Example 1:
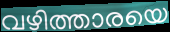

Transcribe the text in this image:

വഴിത്താരയെ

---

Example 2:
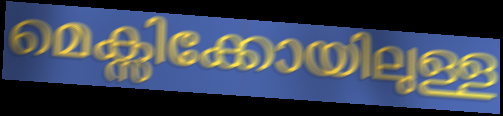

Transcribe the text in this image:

മെക്സിക്കോയിലുള്ള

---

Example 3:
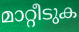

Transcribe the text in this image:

മാറ്റീടുക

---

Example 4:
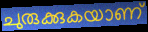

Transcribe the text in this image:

ചുരുക്കുകയാണ്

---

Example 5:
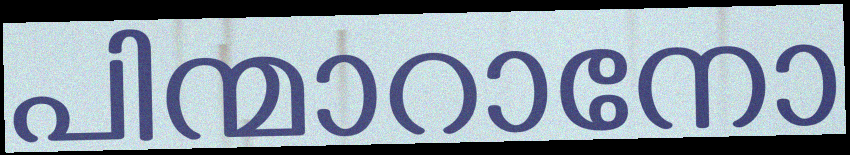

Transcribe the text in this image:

പിന്മാറാനോ